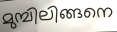
മുമ്പിലിങ്ങനെ